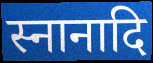
स्नानादि